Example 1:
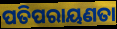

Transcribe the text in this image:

ପତିପରାୟଣତା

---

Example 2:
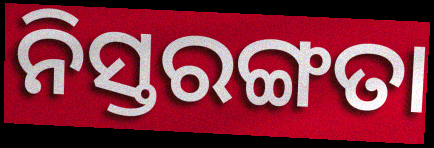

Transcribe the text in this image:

ନିସ୍ତରଙ୍ଗତା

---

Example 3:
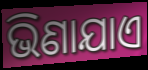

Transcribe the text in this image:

ଭିଣାଯାଏ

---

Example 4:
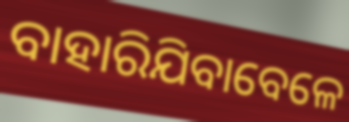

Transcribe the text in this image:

ବାହାରିଯିବାବେଳେ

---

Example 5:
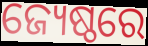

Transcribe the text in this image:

ଜ୍ୟେଷ୍ଠରେ